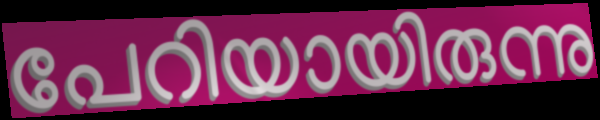
പേറിയായിരുന്നു